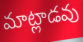
మాట్లాడవు